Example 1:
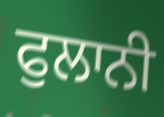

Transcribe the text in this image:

ਫੁਲਾਨੀ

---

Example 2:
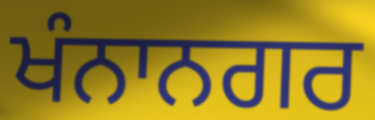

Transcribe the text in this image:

ਖੰਨਾਨਗਰ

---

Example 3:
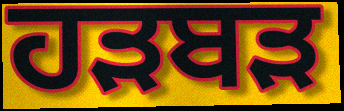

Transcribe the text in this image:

ਹੜਬੜ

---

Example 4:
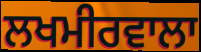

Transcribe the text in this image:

ਲਖਮੀਰਵਾਲਾ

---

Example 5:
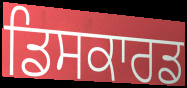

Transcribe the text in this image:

ਡਿਸਕਾਰਡ